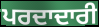
ਪਰਦਾਦਾਰੀ